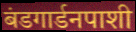
बंडगार्डनपाशी